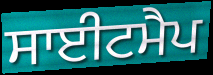
ਸਾਈਟਮੈਪ